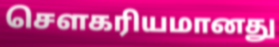
சௌகரியமானது